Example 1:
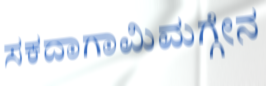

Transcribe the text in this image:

ಸಕದಾಗಾಮಿಮಗ್ಗೇನ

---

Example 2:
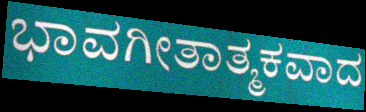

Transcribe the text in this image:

ಭಾವಗೀತಾತ್ಮಕವಾದ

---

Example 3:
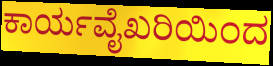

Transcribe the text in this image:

ಕಾರ್ಯವೈಖರಿಯಿಂದ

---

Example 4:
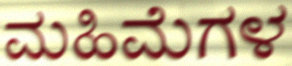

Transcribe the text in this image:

ಮಹಿಮೆಗಳ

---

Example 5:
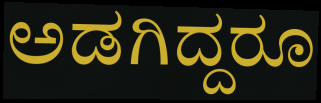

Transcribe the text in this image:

ಅಡಗಿದ್ದರೂ